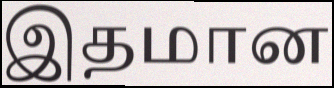
இதமான